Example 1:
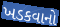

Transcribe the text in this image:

ખડકવાનો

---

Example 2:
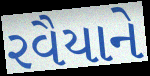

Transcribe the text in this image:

રવૈયાને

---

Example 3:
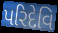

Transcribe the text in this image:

પરિદેવિ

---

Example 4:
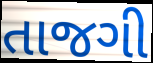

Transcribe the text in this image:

તાજગી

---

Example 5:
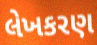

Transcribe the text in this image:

લેખકરણ